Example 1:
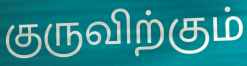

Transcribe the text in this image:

குருவிற்கும்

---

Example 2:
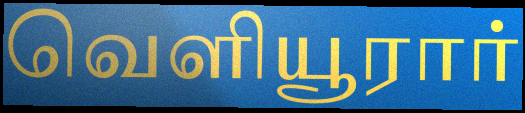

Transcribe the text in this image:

வெளியூரார்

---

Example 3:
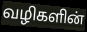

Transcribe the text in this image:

வழிகளின்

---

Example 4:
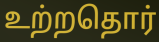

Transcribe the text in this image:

உற்றதொர்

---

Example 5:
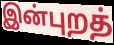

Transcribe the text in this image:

இன்புறத்